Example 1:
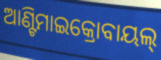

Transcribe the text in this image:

ଆଣ୍ଟିମାଇକ୍ରୋବାୟଲ୍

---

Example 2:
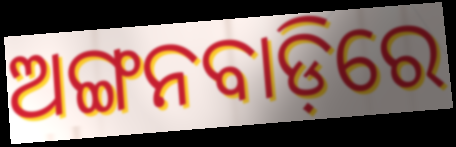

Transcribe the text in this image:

ଅଙ୍ଗନବାଡ଼ିରେ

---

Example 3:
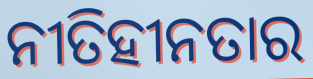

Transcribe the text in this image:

ନୀତିହୀନତାର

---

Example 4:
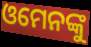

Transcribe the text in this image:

ଓମେନଙ୍କୁ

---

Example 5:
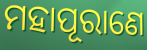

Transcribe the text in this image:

ମହାପୂରାଣେ